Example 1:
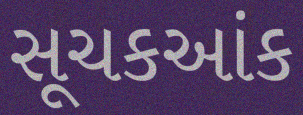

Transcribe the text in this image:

સૂચકઆંક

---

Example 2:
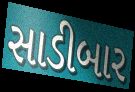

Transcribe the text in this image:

સાડીબાર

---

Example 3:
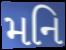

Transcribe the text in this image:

મનિ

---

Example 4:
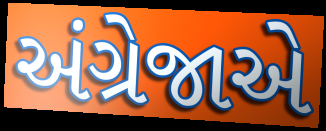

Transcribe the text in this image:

અંગ્રેજાએ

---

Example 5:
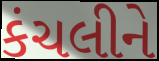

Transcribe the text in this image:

કંચલીને